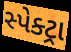
સ્પેક્ટ્રા